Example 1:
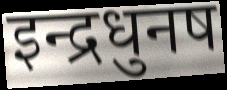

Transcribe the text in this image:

इन्द्रधुनष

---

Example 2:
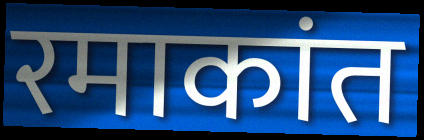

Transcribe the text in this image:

रमाकांत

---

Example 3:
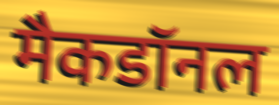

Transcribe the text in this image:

मैकडॉनल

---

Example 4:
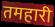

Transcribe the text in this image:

तमहारी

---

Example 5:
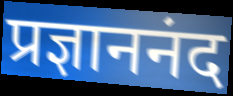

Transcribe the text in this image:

प्रज्ञाननंद